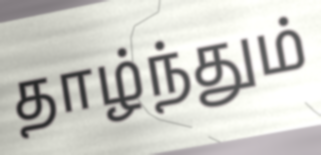
தாழ்ந்தும்